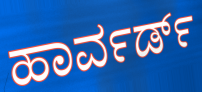
ಹಾರ್ವರ್ಡ್